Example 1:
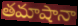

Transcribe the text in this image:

తమాషానా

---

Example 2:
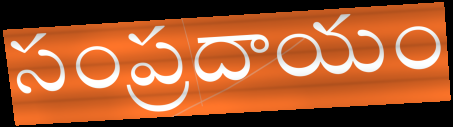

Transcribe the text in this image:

సంప్రదాయం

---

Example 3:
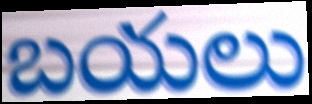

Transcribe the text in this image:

బయలు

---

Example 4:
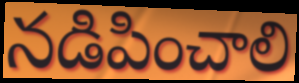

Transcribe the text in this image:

నడిపించాలి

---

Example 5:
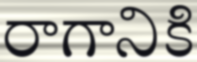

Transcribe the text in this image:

రాగానికి